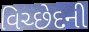
વિચ્છેદની